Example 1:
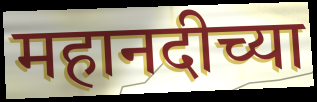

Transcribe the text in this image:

महानदीच्या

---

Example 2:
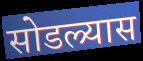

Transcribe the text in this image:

सोडल्यास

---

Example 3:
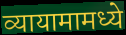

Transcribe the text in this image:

व्यायामामध्ये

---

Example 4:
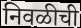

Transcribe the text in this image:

निवळीची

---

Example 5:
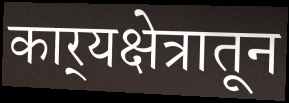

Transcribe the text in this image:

कार्यक्षेत्रातून